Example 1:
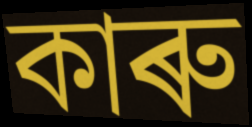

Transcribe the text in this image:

কাৰু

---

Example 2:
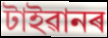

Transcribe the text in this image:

টাইৱানৰ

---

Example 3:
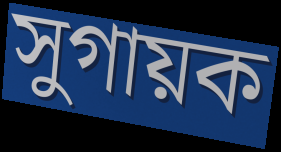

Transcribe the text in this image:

সুগায়ক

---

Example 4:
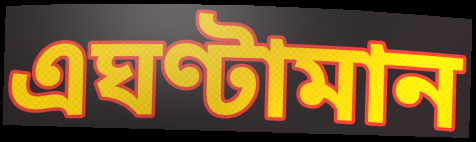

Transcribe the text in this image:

এঘণ্টামান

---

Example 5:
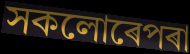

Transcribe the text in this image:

সকলোৰেপৰা